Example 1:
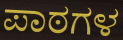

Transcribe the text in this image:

ಪಾಠಗಳ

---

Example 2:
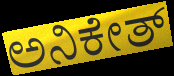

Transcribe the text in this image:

ಅನಿಕೇತ್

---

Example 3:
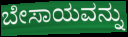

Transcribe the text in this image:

ಬೇಸಾಯವನ್ನು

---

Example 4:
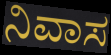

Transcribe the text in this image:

ನಿವಾಸ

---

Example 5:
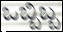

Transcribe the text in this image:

ಒಬ್ಬಿಬ್ಬ